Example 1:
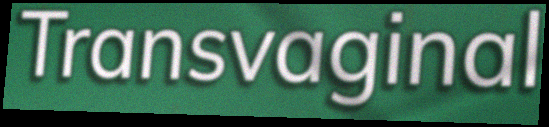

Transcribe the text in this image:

Transvaginal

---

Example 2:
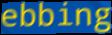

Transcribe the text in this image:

ebbing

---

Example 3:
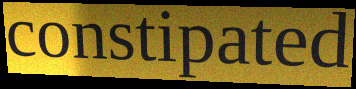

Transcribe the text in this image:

constipated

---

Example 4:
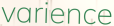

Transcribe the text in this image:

varience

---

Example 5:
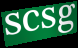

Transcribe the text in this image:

scsg